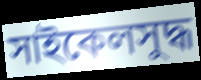
সাইকেলসুদ্ধ